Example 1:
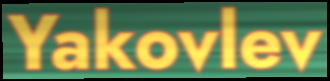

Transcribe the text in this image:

Yakovlev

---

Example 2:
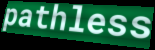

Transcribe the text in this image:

pathless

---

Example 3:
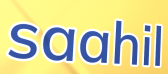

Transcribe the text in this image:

saahil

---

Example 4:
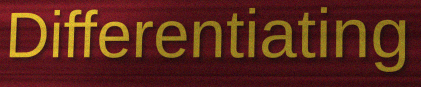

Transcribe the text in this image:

Differentiating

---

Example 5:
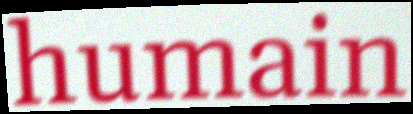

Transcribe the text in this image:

humain